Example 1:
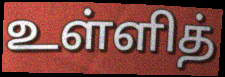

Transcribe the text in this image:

உள்ளித்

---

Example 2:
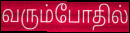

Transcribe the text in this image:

வரும்போதில்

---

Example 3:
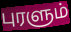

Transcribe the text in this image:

புரளும்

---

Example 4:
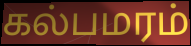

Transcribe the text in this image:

கல்பமரம்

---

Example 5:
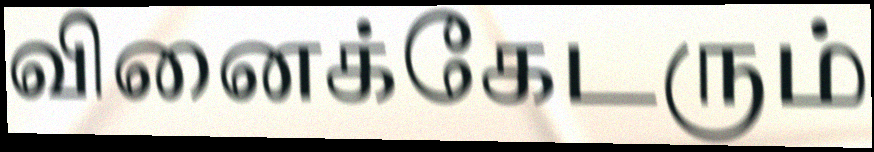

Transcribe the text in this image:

வினைக்கேடரும்